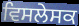
ਵਿਸਲੇਸਕ